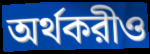
অর্থকরীও